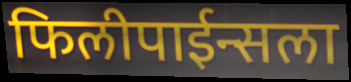
फिलीपाईन्सला